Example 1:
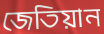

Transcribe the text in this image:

জেতিয়ান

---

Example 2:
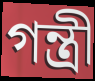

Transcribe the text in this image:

গন্ত্রী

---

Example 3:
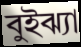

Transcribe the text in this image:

বুইঝ্যা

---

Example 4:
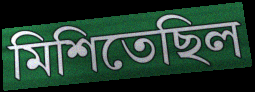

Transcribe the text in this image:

মিশিতেছিল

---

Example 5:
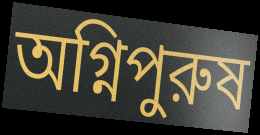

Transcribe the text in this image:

অগ্নিপুরুষ